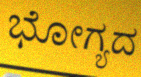
ಭೋಗ್ಯದ